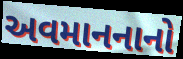
અવમાનનાનો